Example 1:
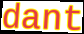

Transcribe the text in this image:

dant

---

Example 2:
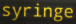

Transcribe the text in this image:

syringe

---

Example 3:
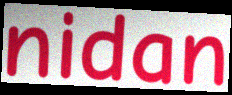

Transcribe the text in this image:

nidan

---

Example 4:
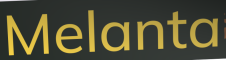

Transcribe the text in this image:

Melanta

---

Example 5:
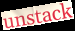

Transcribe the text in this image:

unstack